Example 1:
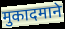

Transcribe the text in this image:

मुकादमाने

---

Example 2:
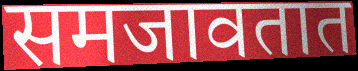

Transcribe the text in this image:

समजावतात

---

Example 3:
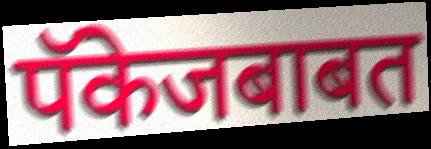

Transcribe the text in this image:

पॅकेजबाबत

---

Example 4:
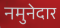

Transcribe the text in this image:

नमुनेदार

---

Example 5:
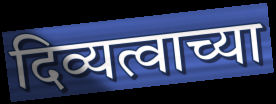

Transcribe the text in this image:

दिव्यत्वाच्या